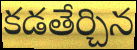
కడతేర్చిన